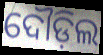
ଦୌଡ଼ିଲ